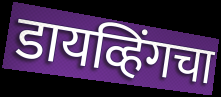
डायव्हिंगचा